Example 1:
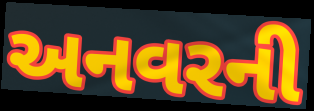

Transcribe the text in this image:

અનવરની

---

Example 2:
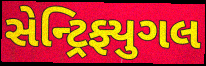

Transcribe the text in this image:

સેન્ટ્રિફ્યુગલ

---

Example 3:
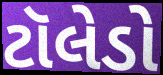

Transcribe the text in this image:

ટૉલેડો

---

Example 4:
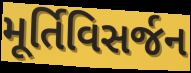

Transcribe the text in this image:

મૂર્તિવિસર્જન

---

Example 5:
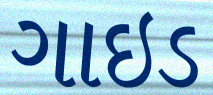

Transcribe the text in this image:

ગાઇડ